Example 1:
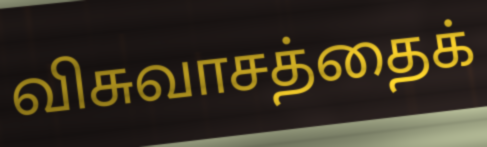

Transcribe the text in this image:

விசுவாசத்தைக்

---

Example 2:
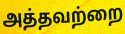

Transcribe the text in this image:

அத்தவற்றை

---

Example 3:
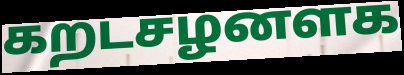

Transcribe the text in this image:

கறடசழனளக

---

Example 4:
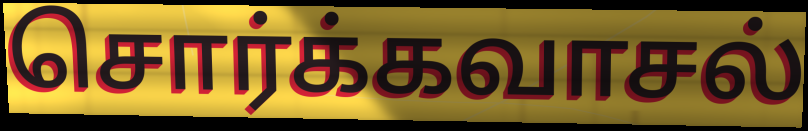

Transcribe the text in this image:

சொர்க்கவாசல்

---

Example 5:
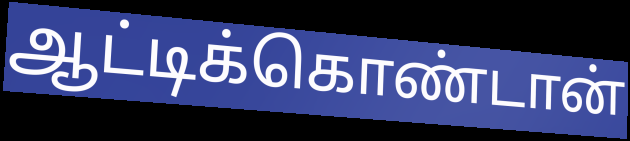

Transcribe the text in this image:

ஆட்டிக்கொண்டான்